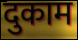
दुकाम